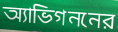
অ্যাভিগননের